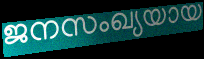
ജനസംഖ്യയായ